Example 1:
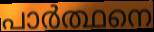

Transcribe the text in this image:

പാർത്ഥനെ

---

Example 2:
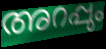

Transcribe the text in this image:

അറപ്പും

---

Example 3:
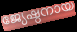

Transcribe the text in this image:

ജ്യേഷ്ഠനായ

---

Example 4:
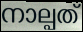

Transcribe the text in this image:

നാല്പത്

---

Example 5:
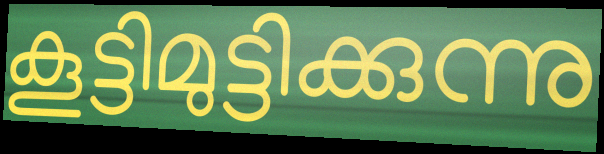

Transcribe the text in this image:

കൂട്ടിമുട്ടിക്കുന്നു